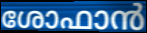
ശോഫാൻ